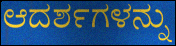
ಆದರ್ಶಗಳನ್ನು